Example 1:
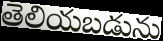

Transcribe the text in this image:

తెలియబడును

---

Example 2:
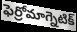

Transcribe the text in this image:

ఫెర్రోమాగ్నెటిక్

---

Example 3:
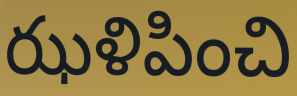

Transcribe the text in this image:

ఝళిపించి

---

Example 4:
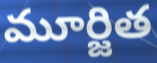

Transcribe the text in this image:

మూర్జిత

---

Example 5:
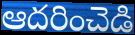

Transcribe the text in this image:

ఆదరించెడి